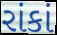
રાંકાં